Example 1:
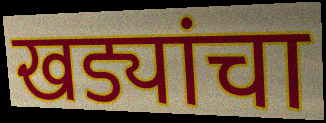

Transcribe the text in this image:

खड्यांचा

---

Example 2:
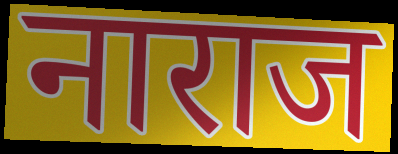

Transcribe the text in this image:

नाराज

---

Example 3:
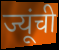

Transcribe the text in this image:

ज्यूंची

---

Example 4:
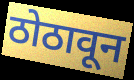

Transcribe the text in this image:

ठोठावून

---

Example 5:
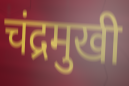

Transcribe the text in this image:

चंद्रमुखी